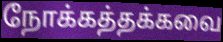
நோக்கத்தக்கவை